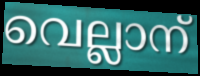
വെല്ലാന്